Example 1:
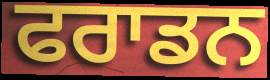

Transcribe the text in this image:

ਫਰਾਡਨ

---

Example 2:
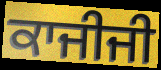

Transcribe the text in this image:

ਕਾਜੀਜੀ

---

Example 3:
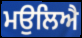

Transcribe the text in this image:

ਮਉਲਿਐ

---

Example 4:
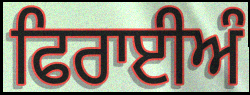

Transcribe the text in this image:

ਫਿਰਾਈਅੰ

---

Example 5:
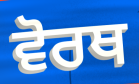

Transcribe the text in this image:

ਵੋਰਥ